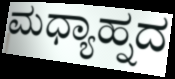
ಮಧ್ಯಾಹ್ನದ